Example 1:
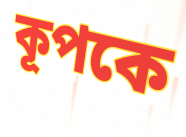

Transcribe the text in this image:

কূপকে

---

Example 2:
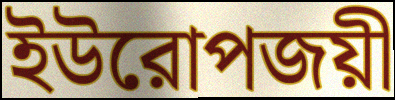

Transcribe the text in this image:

ইউরোপজয়ী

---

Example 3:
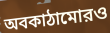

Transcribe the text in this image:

অবকাঠামোরও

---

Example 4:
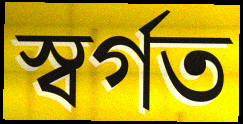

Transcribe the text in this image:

স্বর্গত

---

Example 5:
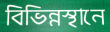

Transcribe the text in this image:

বিভিন্নস্থানে